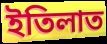
ইতিলাত